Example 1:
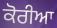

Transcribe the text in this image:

ਕੋਰੀਆ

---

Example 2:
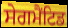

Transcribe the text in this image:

ਸੇਗਮੈਂਟਿਡ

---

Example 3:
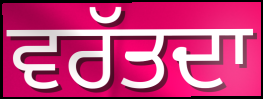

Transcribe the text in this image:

ਵਰੱਤਦਾ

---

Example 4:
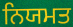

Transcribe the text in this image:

ਨਿਯਮਤ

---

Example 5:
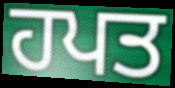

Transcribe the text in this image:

ਹਪਤ